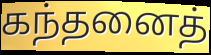
கந்தனைத்